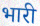
भारी